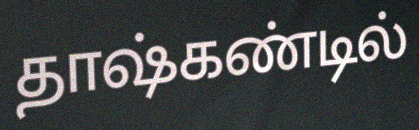
தாஷ்கண்டில்